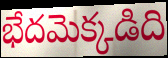
భేదమెక్కడిది